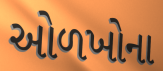
ઓળખોના